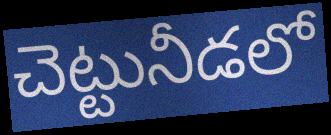
చెట్టునీడలో